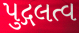
પુદ્ગલત્વ